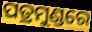
ପତ୍ରମୁଣ୍ଡରେ